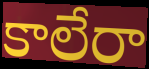
కాలేరా